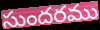
సుందరము